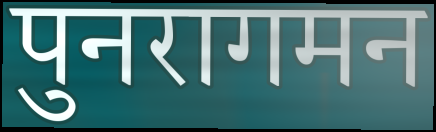
पुनरागमन